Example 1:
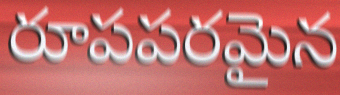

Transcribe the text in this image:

రూపపరమైన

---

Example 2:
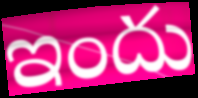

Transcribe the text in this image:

ఇందు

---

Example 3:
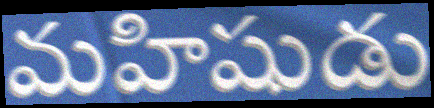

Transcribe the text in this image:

మహిషుడు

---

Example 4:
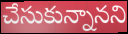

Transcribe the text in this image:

చేసుకున్నానని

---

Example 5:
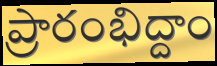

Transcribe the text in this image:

ప్రారంభిద్దాం